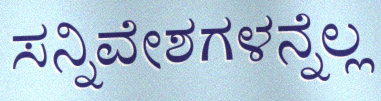
ಸನ್ನಿವೇಶಗಳನ್ನೆಲ್ಲ